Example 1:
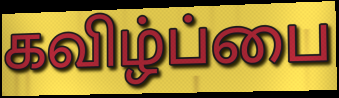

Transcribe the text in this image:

கவிழ்ப்பை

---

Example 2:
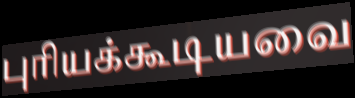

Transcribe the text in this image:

புரியக்கூடியவை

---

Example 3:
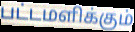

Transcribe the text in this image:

பட்டமளிக்கும்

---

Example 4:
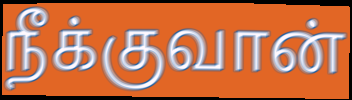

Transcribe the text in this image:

நீக்குவான்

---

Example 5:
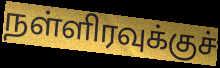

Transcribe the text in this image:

நள்ளிரவுக்குச்